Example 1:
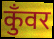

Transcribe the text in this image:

कुँवर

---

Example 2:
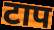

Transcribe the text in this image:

टाप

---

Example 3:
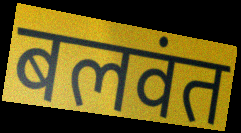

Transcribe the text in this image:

बलवंत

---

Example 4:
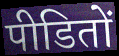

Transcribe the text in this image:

पीडितों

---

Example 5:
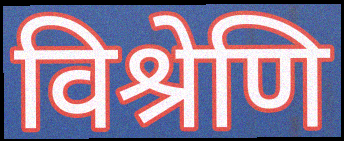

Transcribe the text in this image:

विश्रेणि